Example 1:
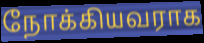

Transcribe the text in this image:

நோக்கியவராக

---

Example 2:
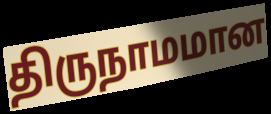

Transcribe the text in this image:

திருநாமமான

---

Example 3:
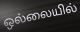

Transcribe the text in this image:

ஒல்லையில்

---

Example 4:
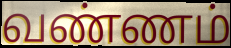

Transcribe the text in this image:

வண்ணம்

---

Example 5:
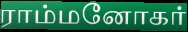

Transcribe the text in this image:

ராம்மனோகர்